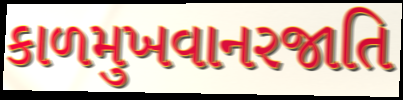
કાળમુખવાનરજાતિ